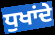
ਧੁਖਾਂਦੇ